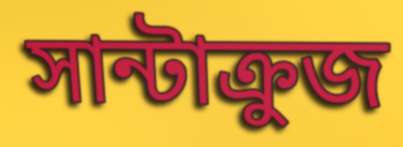
সান্টাক্রুজ